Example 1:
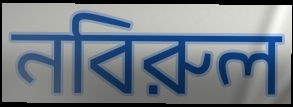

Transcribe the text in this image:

নবিরুল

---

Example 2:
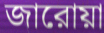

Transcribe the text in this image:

জারোয়া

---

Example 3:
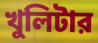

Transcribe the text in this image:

খুলিটার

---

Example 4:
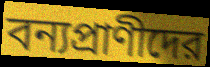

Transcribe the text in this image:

বন্যপ্রাণীদের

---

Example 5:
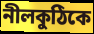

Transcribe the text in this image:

নীলকুঠিকে